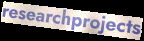
researchprojects